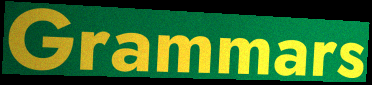
Grammars